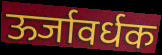
ऊर्जावर्धक